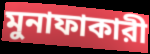
মুনাফাকারী